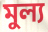
মুল্য